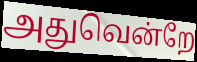
அதுவென்றே